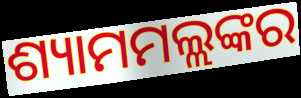
ଶ୍ୟାମମଲ୍ଲଙ୍କର